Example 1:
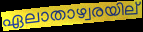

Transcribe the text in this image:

ഏലാതാഴ്വരയില്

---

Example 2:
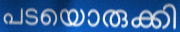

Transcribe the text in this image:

പടയൊരുക്കി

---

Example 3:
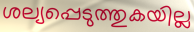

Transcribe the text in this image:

ശല്യപ്പെടുത്തുകയില്ല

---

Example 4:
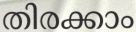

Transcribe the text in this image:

തിരക്കാം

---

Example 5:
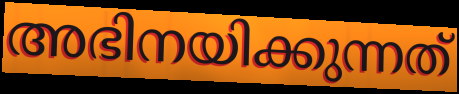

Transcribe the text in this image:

അഭിനയിക്കുന്നത്